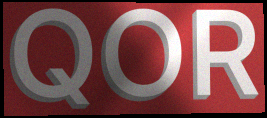
QOR